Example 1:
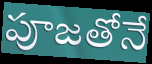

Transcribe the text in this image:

పూజతోనే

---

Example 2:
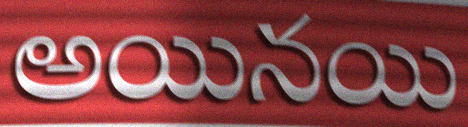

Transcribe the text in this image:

అయినయి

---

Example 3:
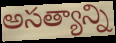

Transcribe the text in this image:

అసత్యాన్ని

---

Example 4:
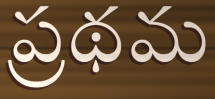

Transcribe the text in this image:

ప్రథమ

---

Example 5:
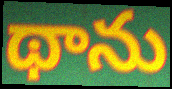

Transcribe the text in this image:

థాను